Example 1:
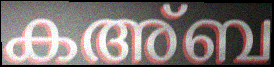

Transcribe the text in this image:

കഅ്ബ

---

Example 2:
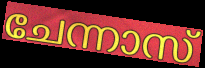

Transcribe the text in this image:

ചേന്നാസ്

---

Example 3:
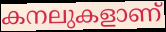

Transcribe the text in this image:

കനലുകളാണ്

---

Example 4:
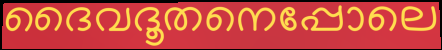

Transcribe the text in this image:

ദൈവദൂതനെപ്പോലെ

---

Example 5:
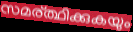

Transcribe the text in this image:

സമര്ത്ഥിക്കുകയും